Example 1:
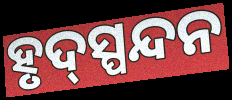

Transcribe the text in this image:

ହୃଦ୍‍ସ୍ପନ୍ଦନ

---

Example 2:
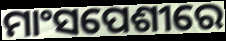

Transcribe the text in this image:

ମାଂସପେଶୀରେ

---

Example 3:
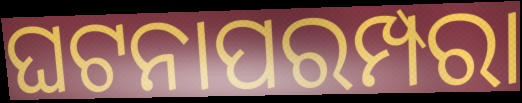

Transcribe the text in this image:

ଘଟନାପରମ୍ପରା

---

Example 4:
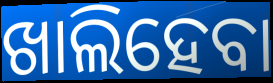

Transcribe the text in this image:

ଖାଲିହେବା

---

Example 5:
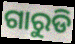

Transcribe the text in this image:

ଗାରୁଡି